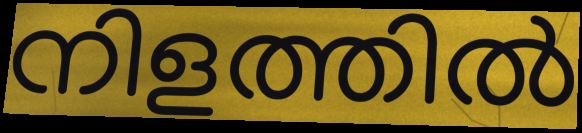
നിളത്തിൽ